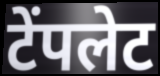
टेंपलेट